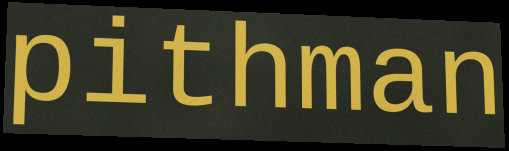
pithman